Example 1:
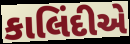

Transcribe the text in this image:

કાલિંદીએ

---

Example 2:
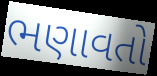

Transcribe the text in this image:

ભણાવતો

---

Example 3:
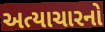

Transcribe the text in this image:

અત્યાચારનો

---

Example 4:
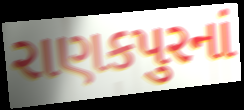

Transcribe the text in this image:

રાણકપુરનાં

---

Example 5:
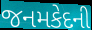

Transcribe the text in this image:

જનમકેદની